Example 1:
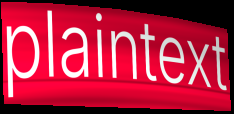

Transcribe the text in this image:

plaintext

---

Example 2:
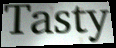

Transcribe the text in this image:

Tasty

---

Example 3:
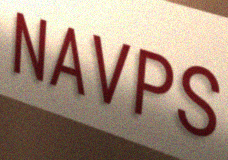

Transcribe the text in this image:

NAVPS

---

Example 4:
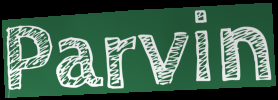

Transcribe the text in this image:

Parvin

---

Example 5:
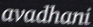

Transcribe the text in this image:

avadhani